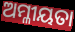
ଅମ୍ଳୀୟତା